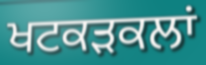
ਖਟਕੜਕਲਾਂ